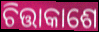
ଚିତ୍ତାକାଶେ